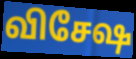
விசேஷ